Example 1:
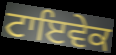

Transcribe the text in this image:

ਟਾਇਵੇਕ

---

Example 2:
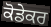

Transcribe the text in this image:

ਕੋਡੇਕਰ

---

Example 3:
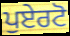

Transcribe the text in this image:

ਪੁਏਰਟੋ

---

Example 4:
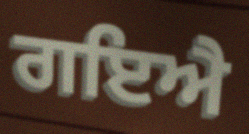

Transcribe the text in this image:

ਗਇਐ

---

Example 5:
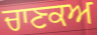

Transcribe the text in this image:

ਚਾਣਕਅ